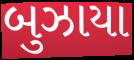
બુઝાયા